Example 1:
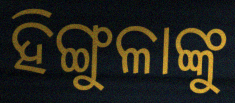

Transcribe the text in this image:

ହିଙ୍ଗୁଳାଙ୍କୁ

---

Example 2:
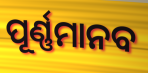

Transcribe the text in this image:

ପୂର୍ଣ୍ଣମାନବ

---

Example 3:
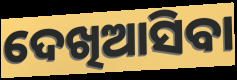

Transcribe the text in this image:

ଦେଖିଆସିବା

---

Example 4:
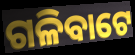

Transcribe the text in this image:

ଗଳିବାଟେ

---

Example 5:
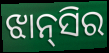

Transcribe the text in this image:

ଝାନ୍‌ସିର